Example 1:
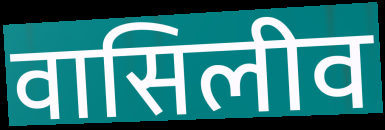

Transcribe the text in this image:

वासिलीव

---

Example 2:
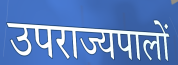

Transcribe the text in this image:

उपराज्यपालों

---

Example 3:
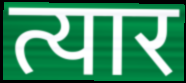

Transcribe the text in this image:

त्यार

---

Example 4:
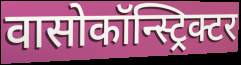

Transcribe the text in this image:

वासोकॉन्स्ट्रिक्टर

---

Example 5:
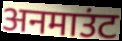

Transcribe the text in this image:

अनमाउंट